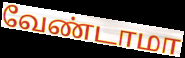
வேண்டாமா